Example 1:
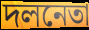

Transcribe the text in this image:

দলনেতা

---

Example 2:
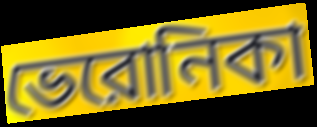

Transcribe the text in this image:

ভেরোনিকা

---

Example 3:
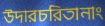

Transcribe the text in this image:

উদারচরিতানাং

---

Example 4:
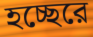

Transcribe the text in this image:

হচ্ছেরে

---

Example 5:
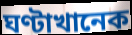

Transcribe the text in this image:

ঘণ্টাখানেক